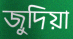
জুদিয়া